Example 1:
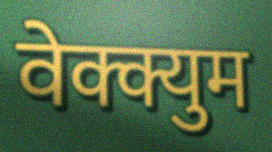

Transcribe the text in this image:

वेक्क्युम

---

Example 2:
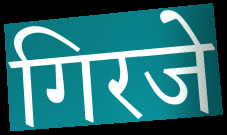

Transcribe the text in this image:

गिरजे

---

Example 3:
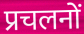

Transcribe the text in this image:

प्रचलनों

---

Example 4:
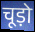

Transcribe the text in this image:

चूड़ो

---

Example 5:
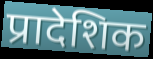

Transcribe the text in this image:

प्रादेशिक